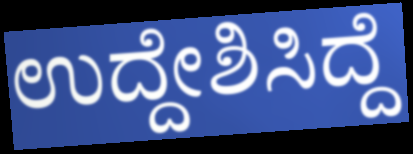
ಉದ್ದೇಶಿಸಿದ್ದೆ